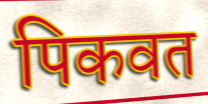
पिकवत